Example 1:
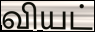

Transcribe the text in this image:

வியட்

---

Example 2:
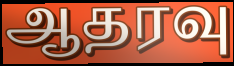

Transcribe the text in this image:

ஆதரவு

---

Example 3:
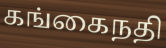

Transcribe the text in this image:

கங்கைநதி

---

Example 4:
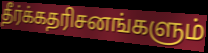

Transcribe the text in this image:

தீர்க்கதரிசனங்களும்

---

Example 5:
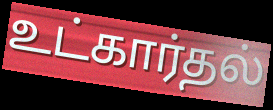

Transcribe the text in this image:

உட்கார்தல்